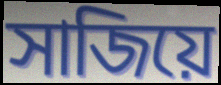
সাজিয়ে